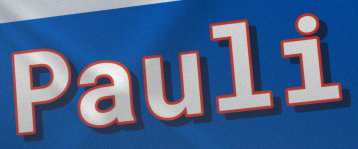
Pauli